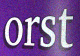
orst